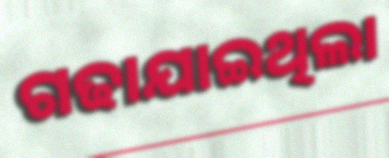
ଗଢାଯାଇଥିଲା